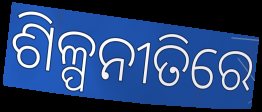
ଶିଳ୍ପନୀତିରେ